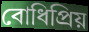
বোধিপ্রিয়